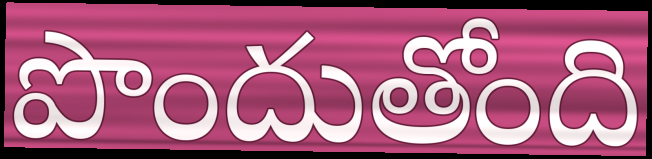
పొందుతోంది